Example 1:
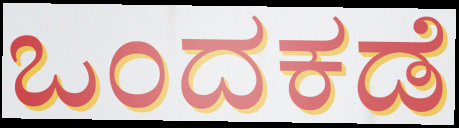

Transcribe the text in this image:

ಒಂದಕಡೆ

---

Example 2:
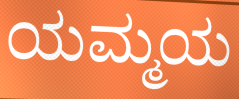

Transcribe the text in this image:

ಯಮ್ಮಯ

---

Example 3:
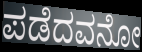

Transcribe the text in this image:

ಪಡೆದವನೋ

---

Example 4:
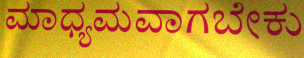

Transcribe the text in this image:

ಮಾಧ್ಯಮವಾಗಬೇಕು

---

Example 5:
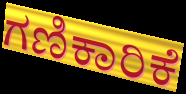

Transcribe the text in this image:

ಗಣಿಕಾರಿಕೆ